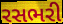
રસભરી